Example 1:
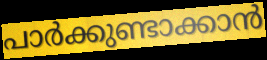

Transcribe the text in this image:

പാർക്കുണ്ടാക്കാൻ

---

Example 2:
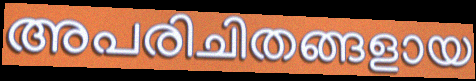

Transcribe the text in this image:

അപരിചിതങ്ങളായ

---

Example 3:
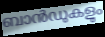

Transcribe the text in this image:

ബാൻഡുകളും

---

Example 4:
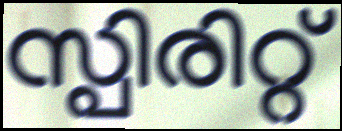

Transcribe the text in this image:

സ്പിരിറ്റ്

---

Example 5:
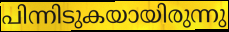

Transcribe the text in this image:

പിന്നിടുകയായിരുന്നു